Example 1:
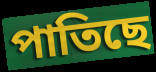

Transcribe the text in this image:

পাতিছে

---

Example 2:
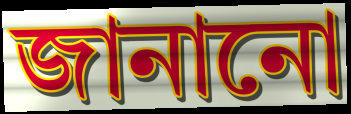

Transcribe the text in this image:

জানানো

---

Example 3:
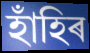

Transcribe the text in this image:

হাঁহিৰ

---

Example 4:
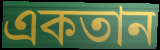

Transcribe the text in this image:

একতান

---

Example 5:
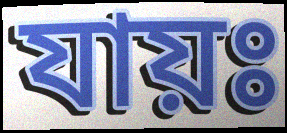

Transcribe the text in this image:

যায়ঃ